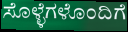
ಸೊಳ್ಳೆಗಳೊಂದಿಗೆ